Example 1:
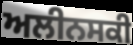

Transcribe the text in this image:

ਅਲੀਨਸਕੀ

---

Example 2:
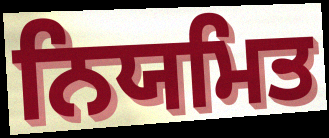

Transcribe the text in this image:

ਨਿਯਮਿਤ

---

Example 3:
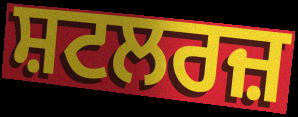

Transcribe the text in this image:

ਸ਼ਟਲਰਜ਼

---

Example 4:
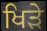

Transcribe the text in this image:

ਖਿੜੇ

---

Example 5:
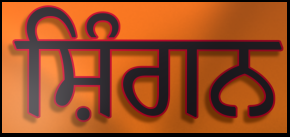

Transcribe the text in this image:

ਸ਼ਿੰਗਨ